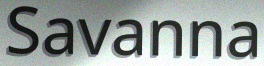
Savanna